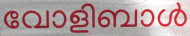
വോളിബാൾ